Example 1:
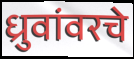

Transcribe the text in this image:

ध्रुवांवरचे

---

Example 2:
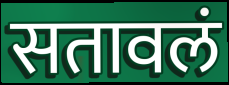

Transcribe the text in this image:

सतावलं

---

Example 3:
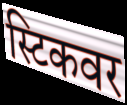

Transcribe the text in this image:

स्टिकवर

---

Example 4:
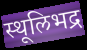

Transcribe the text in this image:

स्थूलिभद्र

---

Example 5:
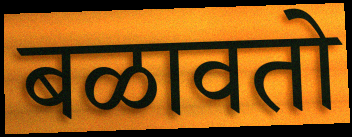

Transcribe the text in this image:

बळावतो